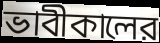
ভাবীকালের